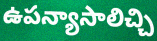
ఉపన్యాసాలిచ్చి